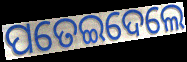
ପତେଇଦେଲେ